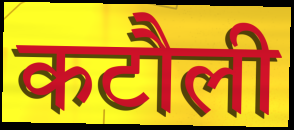
कटौली